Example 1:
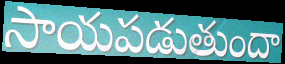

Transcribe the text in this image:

సాయపడుతుందా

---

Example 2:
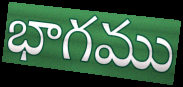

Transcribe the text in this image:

భాగము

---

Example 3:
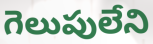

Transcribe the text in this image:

గెలుపులేని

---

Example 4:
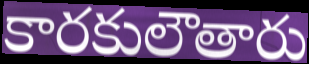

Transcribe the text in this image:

కారకులౌతారు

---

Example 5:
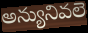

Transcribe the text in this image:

అన్యునివలె